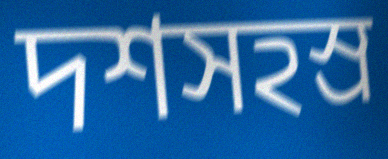
দশসহস্র